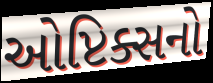
ઓપ્ટિક્સનો